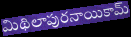
మిథిలాపురనాయికామ్